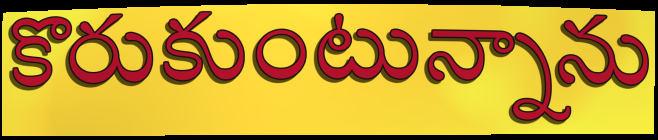
కొరుకుంటున్నాను